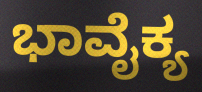
ಭಾವೈಕ್ಯ